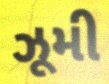
ઝૂમી